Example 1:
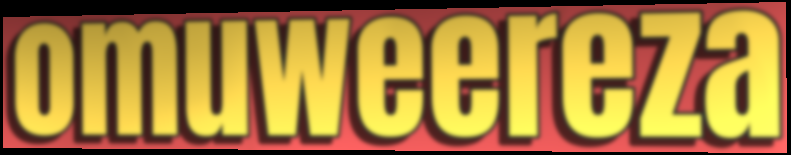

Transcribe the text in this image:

omuweereza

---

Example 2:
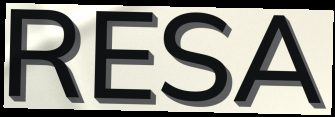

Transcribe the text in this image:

RESA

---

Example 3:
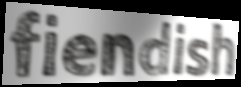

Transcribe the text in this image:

fiendish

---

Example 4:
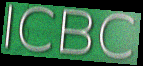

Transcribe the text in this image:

ICBC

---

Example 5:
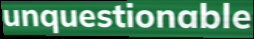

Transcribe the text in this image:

unquestionable